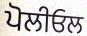
ਪੋਲੀਓਲ